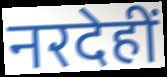
नरदेहीं